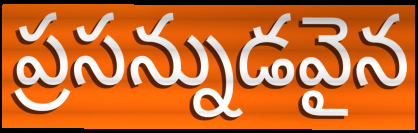
ప్రసన్నుడవైన